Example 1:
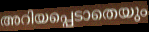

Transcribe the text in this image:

അറിയപ്പെടാതെയും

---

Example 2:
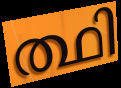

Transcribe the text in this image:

ത്ഥി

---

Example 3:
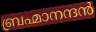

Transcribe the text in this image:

ബ്രഹ്മാനന്ദൻ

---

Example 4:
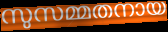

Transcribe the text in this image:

സുസമ്മതനായ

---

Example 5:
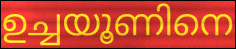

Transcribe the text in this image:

ഉച്ചയൂണിനെ